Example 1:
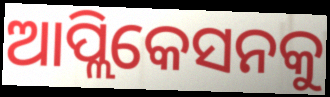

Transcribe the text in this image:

ଆପ୍ଲିକେସନକୁ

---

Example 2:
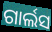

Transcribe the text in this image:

ଗାର୍ଲସ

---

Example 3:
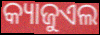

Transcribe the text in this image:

କ୍ୟାଜୁଏଲ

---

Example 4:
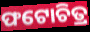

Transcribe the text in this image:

ଫଟୋଚିତ୍ର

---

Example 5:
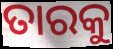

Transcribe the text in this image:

ତାରକୁ